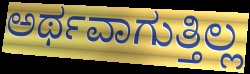
ಅರ್ಥವಾಗುತ್ತಿಲ್ಲ